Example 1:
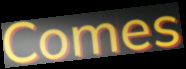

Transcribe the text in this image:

Comes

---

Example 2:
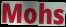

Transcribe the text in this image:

Mohs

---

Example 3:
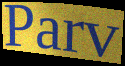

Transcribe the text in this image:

Parv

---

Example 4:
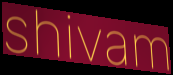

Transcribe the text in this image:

shivam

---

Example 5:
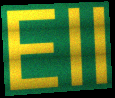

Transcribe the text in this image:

Ell